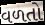
વળતો